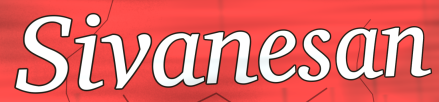
Sivanesan